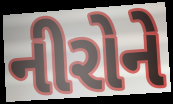
નીરોને